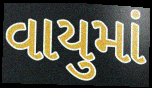
વાયુમાં